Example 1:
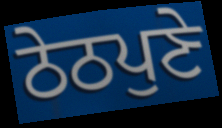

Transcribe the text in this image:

ਠੇਠਪੁਣੇ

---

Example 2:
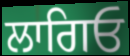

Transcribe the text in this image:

ਲਾਗਿਓ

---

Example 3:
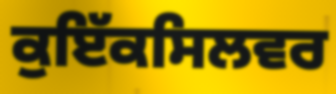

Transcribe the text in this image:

ਕੁਇੱਕਸਿਲਵਰ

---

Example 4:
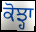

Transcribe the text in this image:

ਕੋਝ੍ਹਾ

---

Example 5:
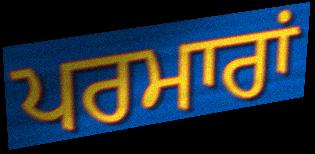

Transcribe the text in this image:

ਪਰਮਾਰਾਂ